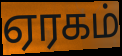
ஏரகம்